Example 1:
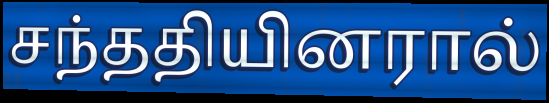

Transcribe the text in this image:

சந்ததியினரால்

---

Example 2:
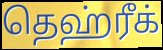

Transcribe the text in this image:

தெஹ்ரீக்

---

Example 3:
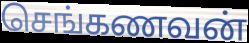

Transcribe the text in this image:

செங்கணவன்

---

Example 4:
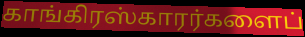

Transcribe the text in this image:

காங்கிரஸ்காரர்களைப்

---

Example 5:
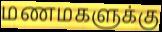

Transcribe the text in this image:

மணமகளுக்கு